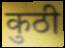
कुठी